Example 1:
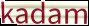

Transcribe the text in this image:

kadam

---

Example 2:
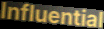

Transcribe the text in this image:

Influential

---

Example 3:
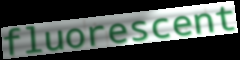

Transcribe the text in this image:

fluorescent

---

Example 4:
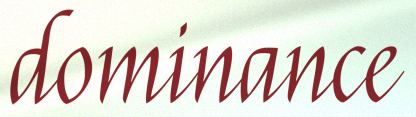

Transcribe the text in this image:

dominance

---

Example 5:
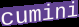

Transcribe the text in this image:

cumini